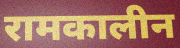
रामकालीन